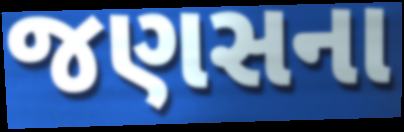
જણસના